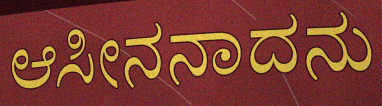
ಆಸೀನನಾದನು